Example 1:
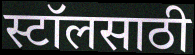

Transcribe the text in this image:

स्टॉलसाठी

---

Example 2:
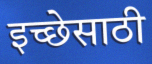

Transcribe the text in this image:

इच्छेसाठी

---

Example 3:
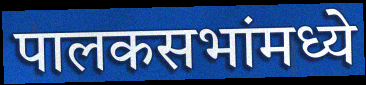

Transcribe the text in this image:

पालकसभांमध्ये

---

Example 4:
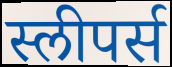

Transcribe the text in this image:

स्लीपर्स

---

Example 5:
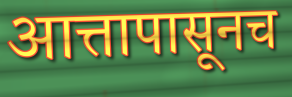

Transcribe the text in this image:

आत्तापासूनच